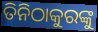
ତିନିଠାକୁରଙ୍କୁ